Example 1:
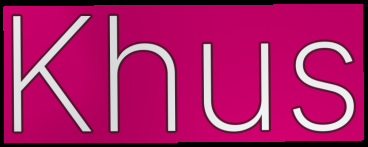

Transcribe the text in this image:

Khus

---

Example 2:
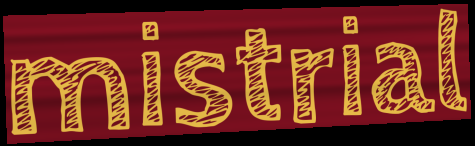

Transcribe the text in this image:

mistrial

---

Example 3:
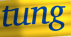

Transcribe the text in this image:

tung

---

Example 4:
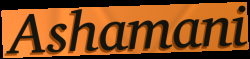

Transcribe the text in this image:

Ashamani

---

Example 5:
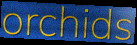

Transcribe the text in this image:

orchids